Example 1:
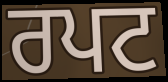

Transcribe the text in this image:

ਰਪਟ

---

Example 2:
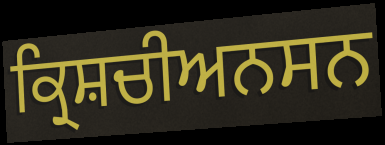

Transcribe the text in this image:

ਕ੍ਰਿਸ਼ਚੀਅਨਸਨ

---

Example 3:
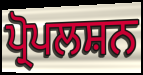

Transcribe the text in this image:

ਪ੍ਰੋਪਲਸ਼ਨ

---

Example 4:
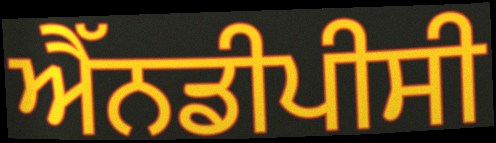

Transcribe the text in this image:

ਐੱਨਡੀਪੀਸੀ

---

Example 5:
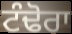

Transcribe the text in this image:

ਟੰਢੋਰਾ